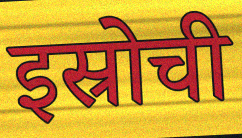
इस्रोची